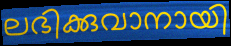
ലഭിക്കുവാനായി